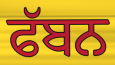
ਫੱਬਨ